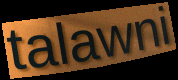
talawni